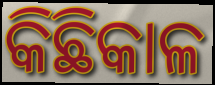
କିଛିକାଳ